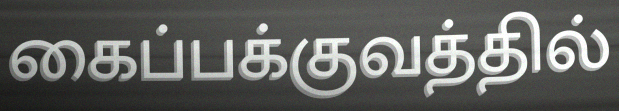
கைப்பக்குவத்தில்